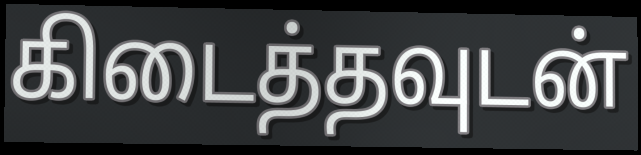
கிடைத்தவுடன்